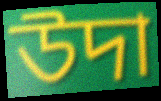
উদা